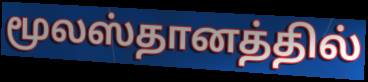
மூலஸ்தானத்தில்